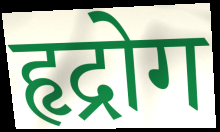
हृद्रोग